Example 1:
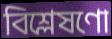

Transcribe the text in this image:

বিশ্লেষণো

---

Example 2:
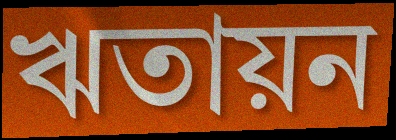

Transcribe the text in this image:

ঋতায়ন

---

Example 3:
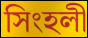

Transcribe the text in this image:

সিংহলী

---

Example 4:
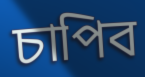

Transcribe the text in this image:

চাপিব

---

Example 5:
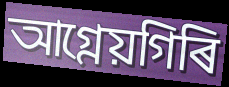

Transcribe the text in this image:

আগ্নেয়গিৰি